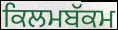
ਕਿਲਮਬੱਕਮ